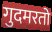
गुदमरतो